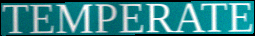
TEMPERATE